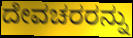
ದೇವಚರರನ್ನು